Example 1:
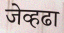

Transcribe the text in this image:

जेव्हढा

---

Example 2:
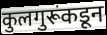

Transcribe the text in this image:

कुलगुरूंकडून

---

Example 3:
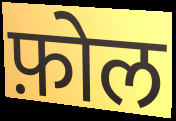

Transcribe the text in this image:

फ़ोल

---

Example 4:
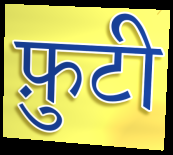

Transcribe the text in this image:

फ़ुटी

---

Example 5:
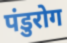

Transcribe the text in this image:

पंडुरोग